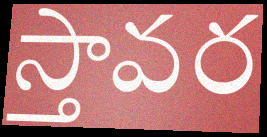
స్తావర